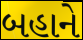
બહાને